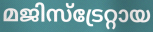
മജിസ്ട്രേറ്റായ